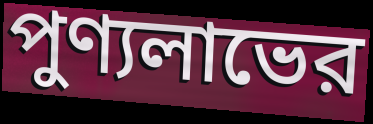
পুণ্যলাভের